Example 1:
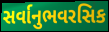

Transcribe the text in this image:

સર્વાનુભવરસિક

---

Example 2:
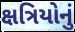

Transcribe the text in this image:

ક્ષત્રિયોનું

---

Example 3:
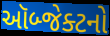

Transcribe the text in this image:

ઑબ્જેક્ટનો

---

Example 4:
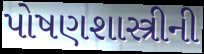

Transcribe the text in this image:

પોષણશાસ્ત્રીની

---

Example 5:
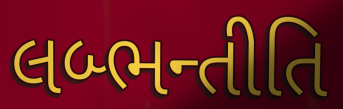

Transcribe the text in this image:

લબ્ભન્તીતિ